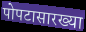
पोपटासारख्या